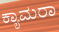
ಕ್ಯಾಮರಾ